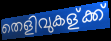
തെളിവുകള്ക്ക്